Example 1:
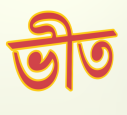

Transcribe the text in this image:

ভীত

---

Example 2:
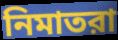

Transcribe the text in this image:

নিমাতরা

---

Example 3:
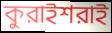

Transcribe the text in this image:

কুরাইশরাই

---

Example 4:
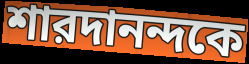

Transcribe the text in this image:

শারদানন্দকে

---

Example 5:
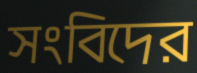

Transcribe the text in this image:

সংবিদের